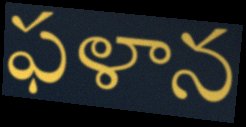
ఫళాన